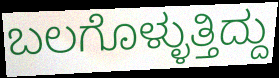
ಬಲಗೊಳ್ಳುತ್ತಿದ್ದು